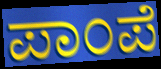
ಪಾಂಪೆ